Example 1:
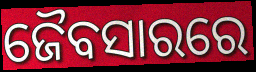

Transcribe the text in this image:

ଜୈବସାରରେ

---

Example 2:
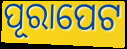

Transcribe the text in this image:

ପୂରାପେଟ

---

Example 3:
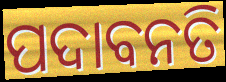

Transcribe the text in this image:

ପଦାବନତି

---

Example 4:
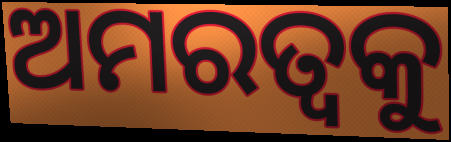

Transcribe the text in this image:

ଅମରତ୍ୱକୁ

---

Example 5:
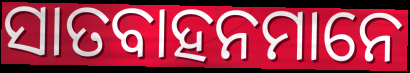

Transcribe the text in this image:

ସାତବାହନମାନେ